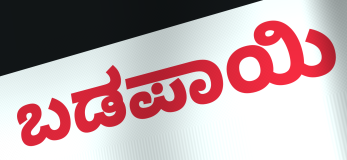
ಬಡಪಾಯಿ